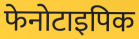
फेनोटाइपिक